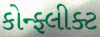
કોન્ફ્લીક્ટ